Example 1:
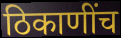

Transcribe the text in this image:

ठिकाणींच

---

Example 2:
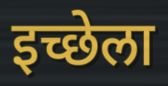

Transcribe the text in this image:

इच्छेला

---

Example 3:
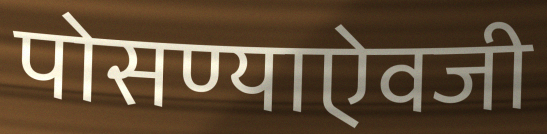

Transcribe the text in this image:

पोसण्याऐवजी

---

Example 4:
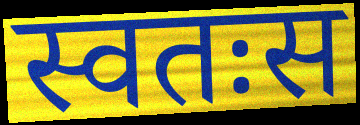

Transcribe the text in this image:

स्वतःस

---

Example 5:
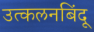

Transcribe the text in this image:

उत्कलनबिंदू